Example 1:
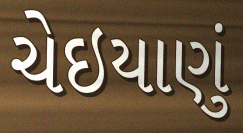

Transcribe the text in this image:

ચેઇયાણું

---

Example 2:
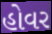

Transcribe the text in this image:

હોવર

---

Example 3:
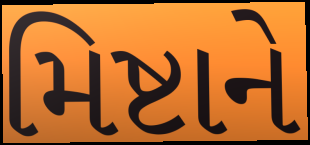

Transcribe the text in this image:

મિષ્ટાને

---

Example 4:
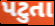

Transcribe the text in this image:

પટુતા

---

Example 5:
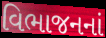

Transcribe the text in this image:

વિભાજનનાં